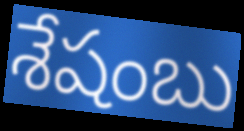
శేషంబు